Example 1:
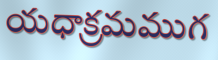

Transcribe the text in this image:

యధాక్రమముగ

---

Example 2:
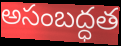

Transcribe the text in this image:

అసంబద్ధత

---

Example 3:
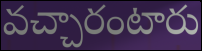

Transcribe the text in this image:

వచ్చారంటారు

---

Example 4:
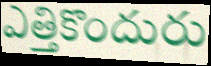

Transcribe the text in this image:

ఎత్తికొందురు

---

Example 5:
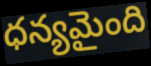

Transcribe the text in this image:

ధన్యమైంది